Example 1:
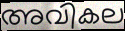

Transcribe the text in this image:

അവികല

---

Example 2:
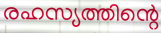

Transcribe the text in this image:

രഹസ്യത്തിന്റെ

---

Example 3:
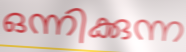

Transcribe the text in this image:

ഒന്നിക്കുന്ന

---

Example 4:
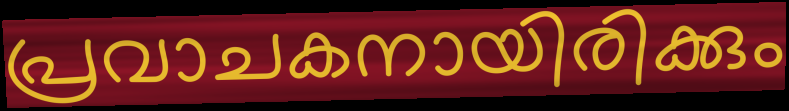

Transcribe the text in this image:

പ്രവാചകനായിരിക്കും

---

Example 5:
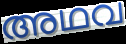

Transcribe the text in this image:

അഥവ